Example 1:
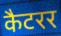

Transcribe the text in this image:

कैटरर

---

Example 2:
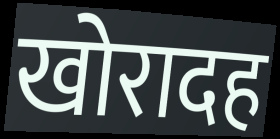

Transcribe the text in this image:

खोरादह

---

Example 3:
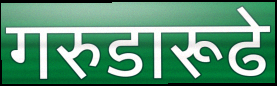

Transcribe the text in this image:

गरुडारूढे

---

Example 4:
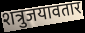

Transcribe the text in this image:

शत्रुजयावतार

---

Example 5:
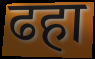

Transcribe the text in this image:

ढहा